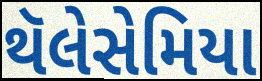
થૅલેસેમિયા